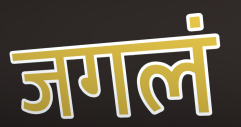
जगलं